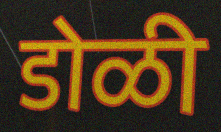
डोळी